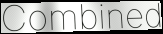
Combined